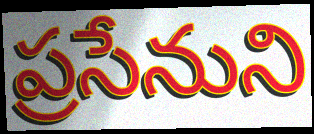
ప్రసేనుని